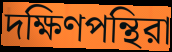
দক্ষিণপন্থিরা